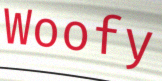
Woofy